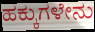
ಹಕ್ಕುಗಳೇನು